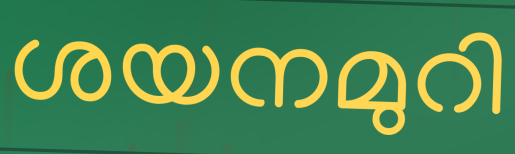
ശയനമുറി